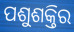
ପଶୁଶକ୍ତିର